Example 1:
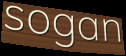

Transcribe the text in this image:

sogan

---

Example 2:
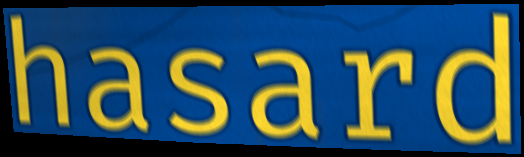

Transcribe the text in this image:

hasard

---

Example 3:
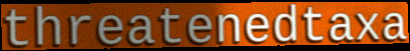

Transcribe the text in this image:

threatenedtaxa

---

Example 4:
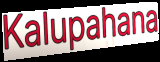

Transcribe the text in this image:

Kalupahana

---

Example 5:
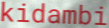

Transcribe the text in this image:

kidambi